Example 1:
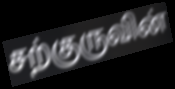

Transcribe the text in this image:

சற்குருவின்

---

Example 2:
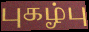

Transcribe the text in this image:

புகழ்பு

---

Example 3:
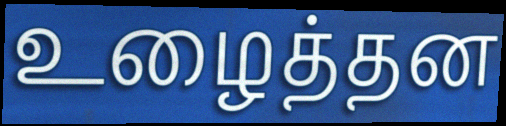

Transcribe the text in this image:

உழைத்தன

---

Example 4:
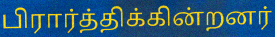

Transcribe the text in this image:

பிரார்த்திக்கின்றனர்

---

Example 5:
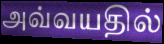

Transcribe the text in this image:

அவ்வயதில்